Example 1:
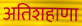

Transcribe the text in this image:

अतिशहाणा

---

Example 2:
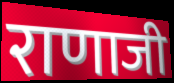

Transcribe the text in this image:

राणाजी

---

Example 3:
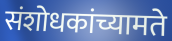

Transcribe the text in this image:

संशोधकांच्यामते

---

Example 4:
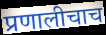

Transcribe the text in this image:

प्रणालीचाच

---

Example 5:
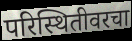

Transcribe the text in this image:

परिस्थितीवरचा